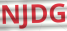
NJDG